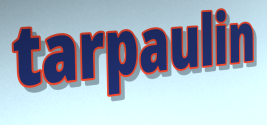
tarpaulin